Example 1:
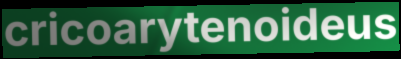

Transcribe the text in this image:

cricoarytenoideus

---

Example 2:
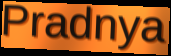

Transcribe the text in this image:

Pradnya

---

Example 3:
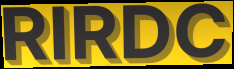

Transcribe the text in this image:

RIRDC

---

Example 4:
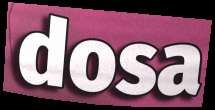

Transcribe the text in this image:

dosa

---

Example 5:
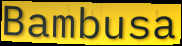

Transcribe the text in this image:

Bambusa